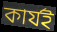
কার্যই